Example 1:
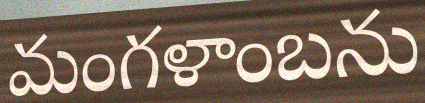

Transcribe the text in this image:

మంగళాంబను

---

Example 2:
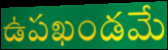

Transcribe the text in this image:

ఉపఖండమే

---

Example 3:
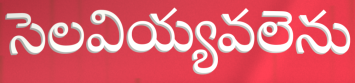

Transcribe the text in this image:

సెలవియ్యవలెను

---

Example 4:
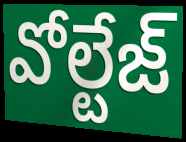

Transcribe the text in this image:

వోల్టేజ్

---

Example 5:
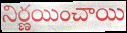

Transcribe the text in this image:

నిర్ణయించాయి